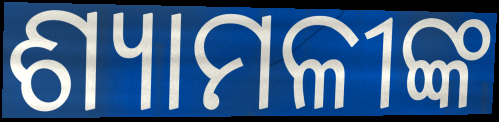
ଶ୍ୟାମଳୀଙ୍କ